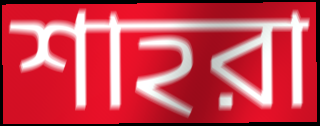
শাহরা